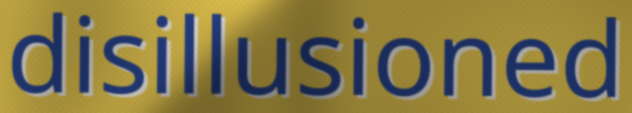
disillusioned